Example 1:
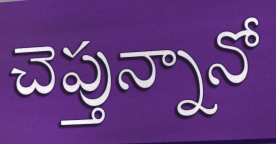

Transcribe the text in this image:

చెప్తున్నానో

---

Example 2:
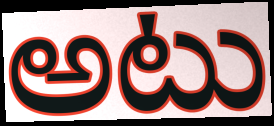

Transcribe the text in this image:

అటు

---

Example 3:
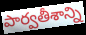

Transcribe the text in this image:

పార్వతీశాన్ని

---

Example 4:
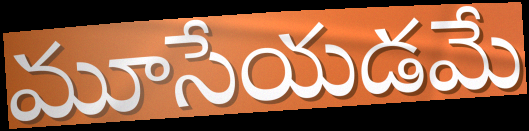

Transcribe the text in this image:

మూసేయడమే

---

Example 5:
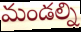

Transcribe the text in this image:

మండల్ని